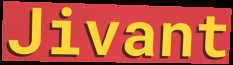
Jivant